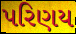
પરિણય